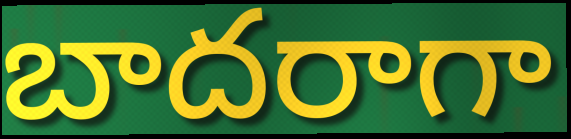
బాదరాగా